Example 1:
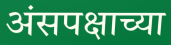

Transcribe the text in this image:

अंसपक्षाच्या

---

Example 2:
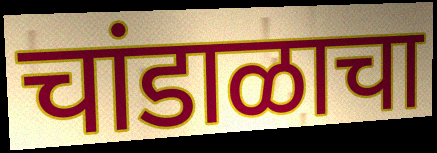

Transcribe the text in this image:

चांडाळाचा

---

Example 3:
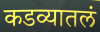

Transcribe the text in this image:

कडव्यातलं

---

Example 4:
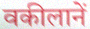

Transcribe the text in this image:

वकीलानें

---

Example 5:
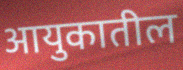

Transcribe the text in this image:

आयुकातील